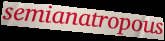
semianatropous